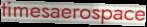
timesaerospace